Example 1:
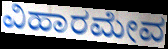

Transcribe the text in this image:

ವಿಹಾರಮೇವ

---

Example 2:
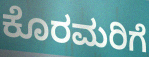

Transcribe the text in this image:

ಕೊರಮರಿಗೆ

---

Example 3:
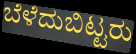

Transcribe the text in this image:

ಬೆಳೆದುಬಿಟ್ಟರು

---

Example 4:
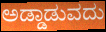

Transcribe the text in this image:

ಅಡ್ಡಾಡುವದು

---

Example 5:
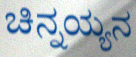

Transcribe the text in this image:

ಚಿನ್ನಯ್ಯನ